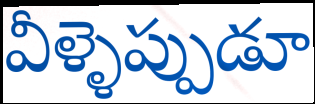
వీళ్ళెప్పుడూ